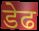
डेढ